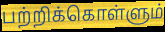
பற்றிக்கொள்ளும்